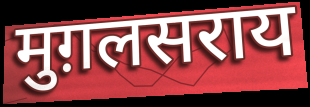
मुग़लसराय